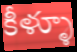
కీళ్ళూ